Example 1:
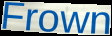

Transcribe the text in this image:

Frown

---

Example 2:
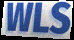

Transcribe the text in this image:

WLS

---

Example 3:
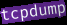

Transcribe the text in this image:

tcpdump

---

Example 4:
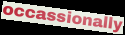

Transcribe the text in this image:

occassionally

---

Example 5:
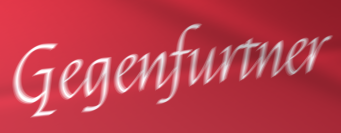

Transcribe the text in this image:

Gegenfurtner